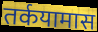
तर्कयामास